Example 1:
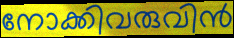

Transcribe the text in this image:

നോക്കിവരുവിൻ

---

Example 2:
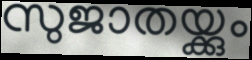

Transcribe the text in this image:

സുജാതയ്ക്കും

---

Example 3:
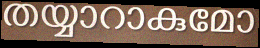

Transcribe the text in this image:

തയ്യാറാകുമോ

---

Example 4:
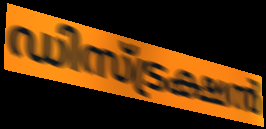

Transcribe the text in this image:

ഡിസ്ട്രക്ഷൻ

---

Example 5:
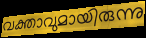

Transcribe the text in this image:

വക്താവുമായിരുന്നു